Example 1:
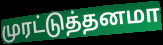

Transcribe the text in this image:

முரட்டுத்தனமா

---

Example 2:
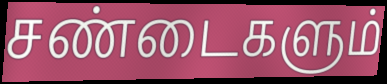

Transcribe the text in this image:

சண்டைகளும்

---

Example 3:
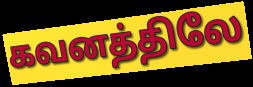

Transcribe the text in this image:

கவனத்திலே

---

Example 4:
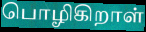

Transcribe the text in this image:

பொழிகிறாள்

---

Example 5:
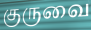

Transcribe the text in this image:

குருவை